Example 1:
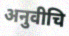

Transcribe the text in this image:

अनुवीचि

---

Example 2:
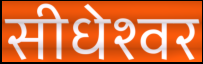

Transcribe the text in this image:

सीधेश्वर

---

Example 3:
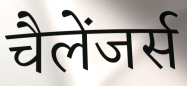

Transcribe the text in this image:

चैलेंजर्स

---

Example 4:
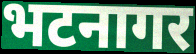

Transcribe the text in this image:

भटनागर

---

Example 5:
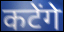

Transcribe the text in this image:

कटेंगे